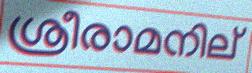
ശ്രീരാമനില്